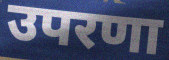
उपरणा